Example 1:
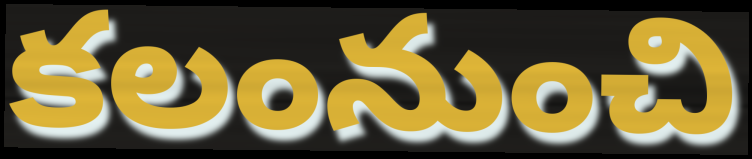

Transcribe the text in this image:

కలంనుంచి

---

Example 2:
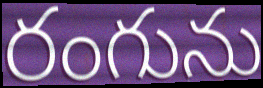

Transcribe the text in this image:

రంగును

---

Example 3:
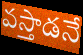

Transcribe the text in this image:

వస్తాడనే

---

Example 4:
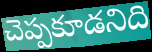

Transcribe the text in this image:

చెప్పకూడనిది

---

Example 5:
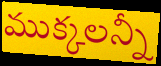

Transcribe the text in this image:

ముక్కలన్నీ